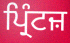
ਪ੍ਰਿੰਟਜ਼